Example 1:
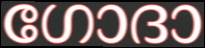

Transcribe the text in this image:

ഗോദാ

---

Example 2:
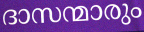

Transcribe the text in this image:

ദാസന്മാരും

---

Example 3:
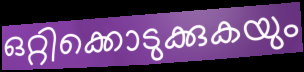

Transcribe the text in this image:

ഒറ്റിക്കൊടുക്കുകയും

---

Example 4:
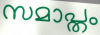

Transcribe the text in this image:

സമാപ്തം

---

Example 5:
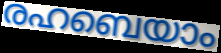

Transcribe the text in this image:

രഹബെയാം